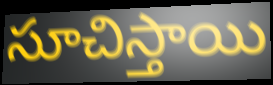
సూచిస్తాయి